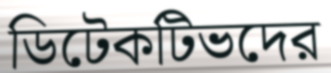
ডিটেকটিভদের